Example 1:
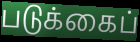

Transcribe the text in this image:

படுக்கைப்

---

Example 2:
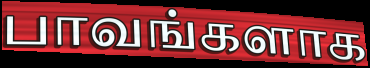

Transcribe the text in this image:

பாவங்களாக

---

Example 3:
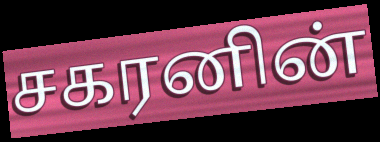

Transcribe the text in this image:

சகரனின்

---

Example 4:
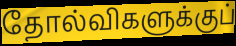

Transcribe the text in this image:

தோல்விகளுக்குப்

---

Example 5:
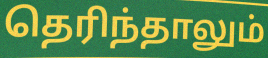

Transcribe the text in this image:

தெரிந்தாலும்